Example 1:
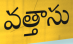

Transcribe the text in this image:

వత్తాసు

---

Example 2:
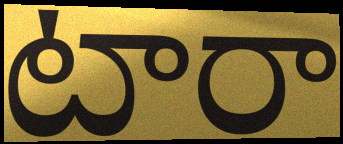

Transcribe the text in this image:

టారా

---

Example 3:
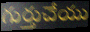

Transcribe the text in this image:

గుర్తుచేయు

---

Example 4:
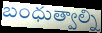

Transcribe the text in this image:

బంధుత్వాల్ని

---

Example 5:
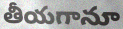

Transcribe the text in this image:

తీయగానూ